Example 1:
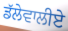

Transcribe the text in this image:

ਡੱਲੇਵਾਲੀਏ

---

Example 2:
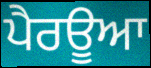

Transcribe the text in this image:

ਪੈਰਊਆ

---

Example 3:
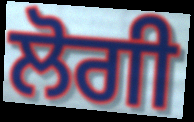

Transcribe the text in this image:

ਲੋਗੀ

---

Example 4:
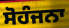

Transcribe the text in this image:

ਸੋਹੰਜਨਾ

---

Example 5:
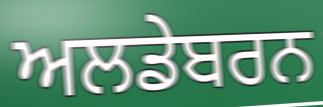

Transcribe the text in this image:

ਅਲਡੇਬਰਨ